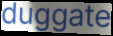
duggate